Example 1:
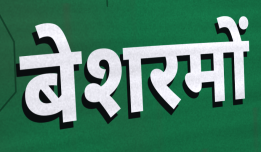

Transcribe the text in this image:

बेशरमों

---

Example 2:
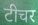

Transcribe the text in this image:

टीचर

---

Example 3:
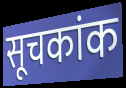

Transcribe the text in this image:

सूचकांक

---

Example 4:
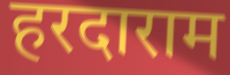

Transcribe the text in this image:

हरदाराम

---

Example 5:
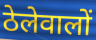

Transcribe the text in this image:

ठेलेवालों